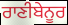
ਰਾਣੀਬੇਨੂਰ